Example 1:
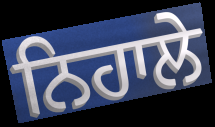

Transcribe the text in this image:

ਨਿਹਾਲੇ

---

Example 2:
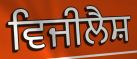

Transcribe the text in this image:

ਵਿਜੀਲੈਸ਼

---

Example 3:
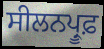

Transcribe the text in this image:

ਸੀਲਨਪ੍ਰੂਫ਼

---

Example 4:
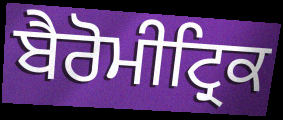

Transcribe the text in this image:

ਬੈਰੋਮੀਟ੍ਰਿਕ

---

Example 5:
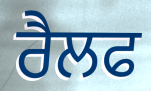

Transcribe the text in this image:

ਰੈਲਫ